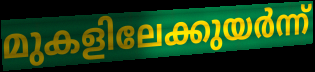
മുകളിലേക്കുയർന്ന്